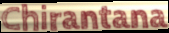
Chirantana